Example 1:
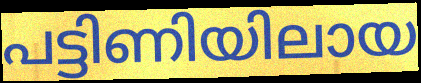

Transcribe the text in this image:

പട്ടിണിയിലായ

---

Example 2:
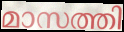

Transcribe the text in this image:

മാസത്തി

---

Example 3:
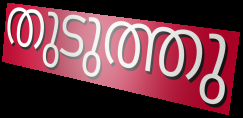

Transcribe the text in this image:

തുടുത്തു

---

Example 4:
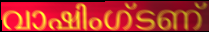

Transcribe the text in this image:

വാഷിംഗ്ടണ്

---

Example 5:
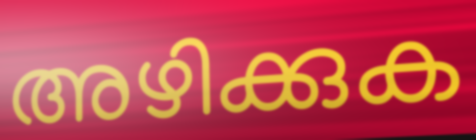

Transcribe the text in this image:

അഴിക്കുക